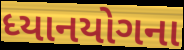
ધ્યાનયોગના